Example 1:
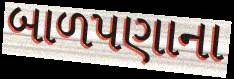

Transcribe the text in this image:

બાળપણાના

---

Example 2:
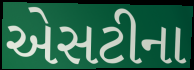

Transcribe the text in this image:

એસટીના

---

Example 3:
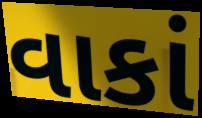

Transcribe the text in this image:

વાકાં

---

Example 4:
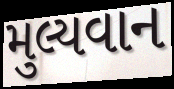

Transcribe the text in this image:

મુલ્યવાન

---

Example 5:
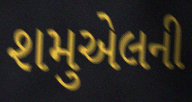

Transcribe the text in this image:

શમુએલની